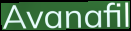
Avanafil